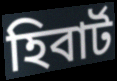
হিবার্ট